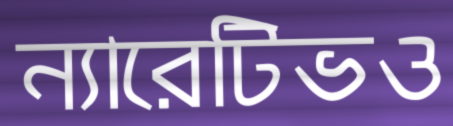
ন্যারেটিভও